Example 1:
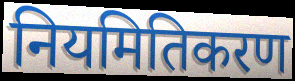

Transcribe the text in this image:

नियमितिकरण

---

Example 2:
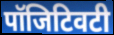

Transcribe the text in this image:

पॉजिटिवटी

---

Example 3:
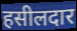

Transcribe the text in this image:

हसीलदार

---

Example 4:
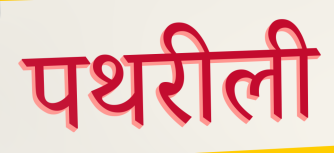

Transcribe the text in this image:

पथरीली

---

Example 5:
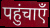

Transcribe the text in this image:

पहुंचाएँ